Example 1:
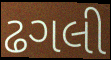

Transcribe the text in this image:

ઢગલી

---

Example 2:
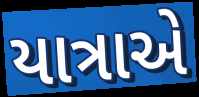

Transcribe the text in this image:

યાત્રાએ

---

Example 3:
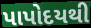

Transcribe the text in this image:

પાપોદયથી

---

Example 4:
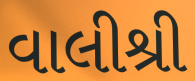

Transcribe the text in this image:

વાલીશ્રી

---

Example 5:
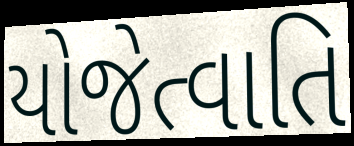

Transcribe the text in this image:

યોજેત્વાતિ